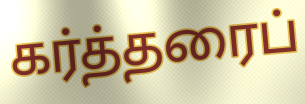
கர்த்தரைப்